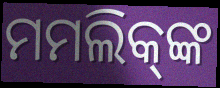
ମମଲିକ୍‌ଙ୍କ